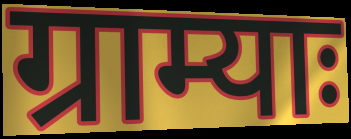
ग्राम्याः